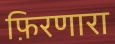
फ़िरणारा